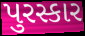
પુરસ્કાર